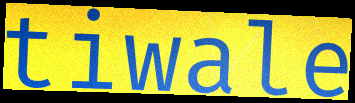
tiwale